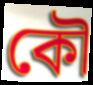
কৌ